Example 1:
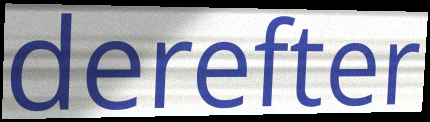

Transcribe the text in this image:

derefter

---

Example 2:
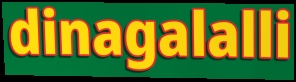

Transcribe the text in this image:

dinagalalli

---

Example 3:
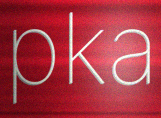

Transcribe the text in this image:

pka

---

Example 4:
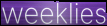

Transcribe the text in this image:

weeklies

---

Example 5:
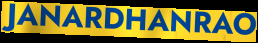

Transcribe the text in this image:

JANARDHANRAO